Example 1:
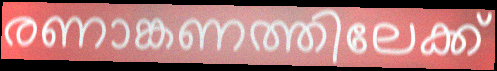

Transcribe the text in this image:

രണാങ്കണത്തിലേക്ക്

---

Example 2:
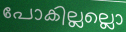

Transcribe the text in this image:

പോകില്ലല്ലൊ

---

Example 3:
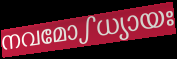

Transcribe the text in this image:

നവമോഽധ്യായഃ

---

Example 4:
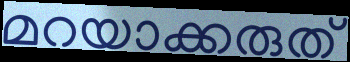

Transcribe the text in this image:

മറയാക്കരുത്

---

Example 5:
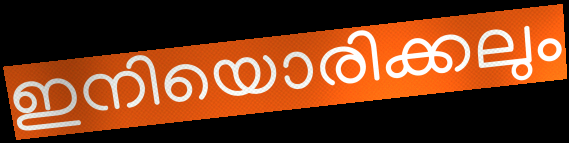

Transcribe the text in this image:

ഇനിയൊരിക്കലും